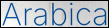
Arabica